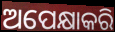
ଅପେକ୍ଷାକରି